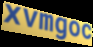
xvmgoc